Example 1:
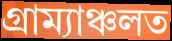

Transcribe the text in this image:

গ্ৰাম্যাঞ্চলত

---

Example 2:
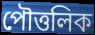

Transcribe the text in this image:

পৌত্তলিক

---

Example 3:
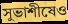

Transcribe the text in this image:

সুভাশীষেও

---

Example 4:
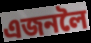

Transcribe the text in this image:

এজনলৈ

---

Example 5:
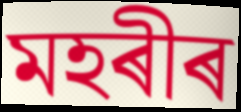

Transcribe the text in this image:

মহৰীৰ